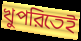
খুপরিতেই